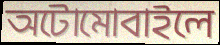
অটোমোবাইলে